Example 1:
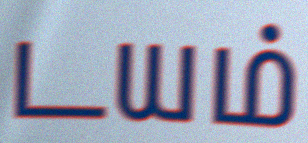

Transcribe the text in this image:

டயம்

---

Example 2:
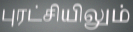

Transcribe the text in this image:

புரட்சியிலும்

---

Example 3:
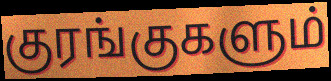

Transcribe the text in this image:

குரங்குகளும்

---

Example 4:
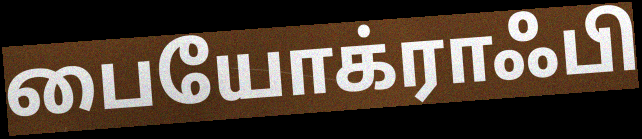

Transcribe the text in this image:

பையோக்ராஃபி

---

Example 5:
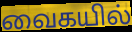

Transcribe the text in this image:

வைகயில்